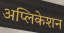
अप्लिकेशन